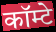
कॉम्टे